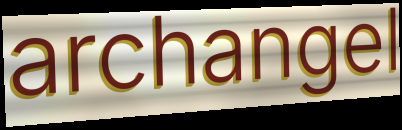
archangel